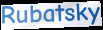
Rubatsky